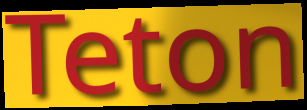
Teton